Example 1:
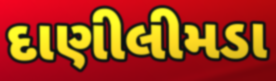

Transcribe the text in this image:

દાણીલીમડા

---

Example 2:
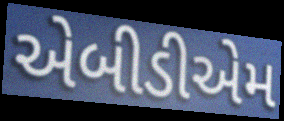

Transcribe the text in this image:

એબીડીએમ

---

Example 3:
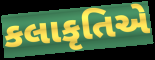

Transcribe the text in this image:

કલાકૃતિએ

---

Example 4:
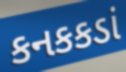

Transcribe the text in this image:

કનકકડાં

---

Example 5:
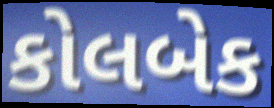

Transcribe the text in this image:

કોલબેક